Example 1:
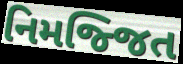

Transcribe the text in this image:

નિમજ્જિત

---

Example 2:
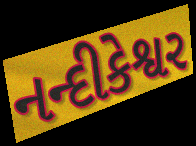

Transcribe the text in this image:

નન્દીકેશ્વર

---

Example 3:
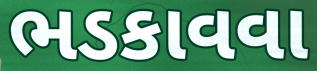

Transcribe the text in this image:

ભડકાવવા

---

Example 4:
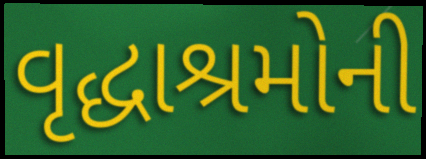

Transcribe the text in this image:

વૃદ્ધાશ્રમોની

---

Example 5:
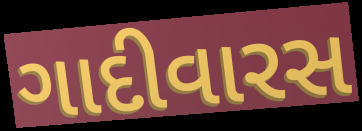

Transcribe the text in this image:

ગાદીવારસ